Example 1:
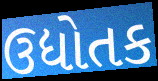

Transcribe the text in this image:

ઉદ્યોતક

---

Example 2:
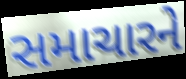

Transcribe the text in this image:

સમાચારને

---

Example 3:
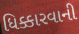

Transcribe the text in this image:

ધિક્કારવાની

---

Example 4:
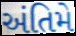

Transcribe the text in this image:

અંતિમે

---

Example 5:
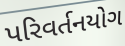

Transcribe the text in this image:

પરિવર્તનયોગ